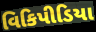
વિકિપીડિયા